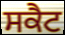
ਸਕੈਟ